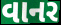
વાનર